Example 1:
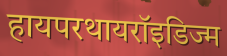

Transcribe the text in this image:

हायपरथायरॉइडिज्म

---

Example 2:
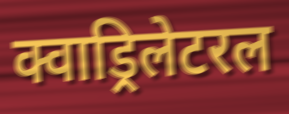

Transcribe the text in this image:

क्वाड्रिलेटरल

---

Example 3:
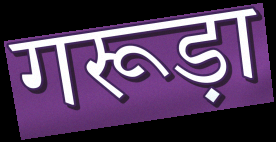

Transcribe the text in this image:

गरूड़ा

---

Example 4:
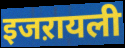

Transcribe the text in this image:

इजऱायली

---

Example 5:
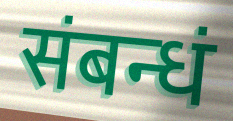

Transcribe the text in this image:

संबन्धं